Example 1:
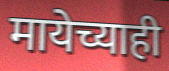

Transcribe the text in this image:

मायेच्याही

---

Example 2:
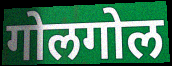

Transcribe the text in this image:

गोलगोल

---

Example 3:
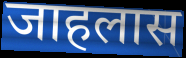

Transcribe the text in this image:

जाहलास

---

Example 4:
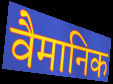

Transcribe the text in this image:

वैमानिक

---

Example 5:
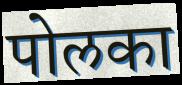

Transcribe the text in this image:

पोलका